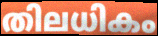
തിലധികം